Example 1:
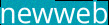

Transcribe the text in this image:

newweb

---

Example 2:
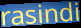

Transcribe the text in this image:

rasindi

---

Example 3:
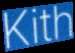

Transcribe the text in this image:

Kith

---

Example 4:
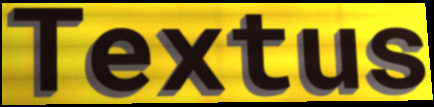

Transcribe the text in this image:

Textus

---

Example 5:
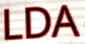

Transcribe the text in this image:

LDA